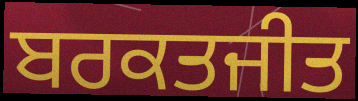
ਬਰਕਤਜੀਤ